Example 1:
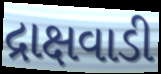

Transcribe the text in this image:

દ્રાક્ષવાડી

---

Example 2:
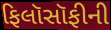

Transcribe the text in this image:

ફિલૉસૉફીની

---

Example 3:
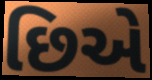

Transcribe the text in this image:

છિએ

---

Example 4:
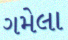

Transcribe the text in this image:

ગમેલા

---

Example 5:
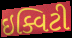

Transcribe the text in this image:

ઇક્વિટી